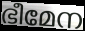
ഭീമേന